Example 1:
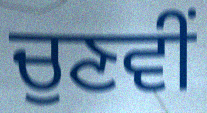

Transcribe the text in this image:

ਚੁਣਵੀਂ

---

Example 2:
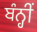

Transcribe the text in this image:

ਬੰਨ੍ਹੀਂ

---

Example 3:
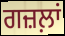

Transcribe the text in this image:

ਗਜ਼ਲ਼ਾਂ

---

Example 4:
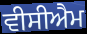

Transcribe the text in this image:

ਵੀਸੀਐਮ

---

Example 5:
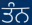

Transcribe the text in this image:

ਤੰਨ